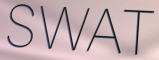
SWAT